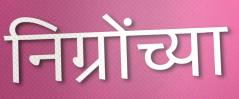
निग्रोंच्या